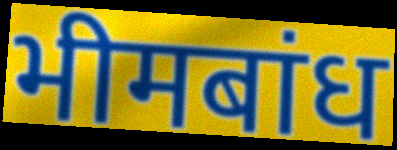
भीमबांध